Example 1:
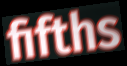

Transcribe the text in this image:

fifths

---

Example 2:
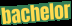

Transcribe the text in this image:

bachelor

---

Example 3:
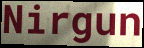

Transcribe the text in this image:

Nirgun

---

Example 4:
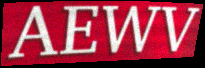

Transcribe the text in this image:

AEWV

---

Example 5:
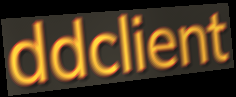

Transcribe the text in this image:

ddclient